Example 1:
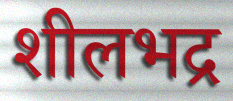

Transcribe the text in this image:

शीलभद्र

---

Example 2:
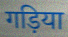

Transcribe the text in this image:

गड़िया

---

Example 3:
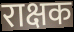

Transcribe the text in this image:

राक्षक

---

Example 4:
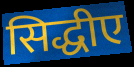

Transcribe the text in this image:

सिद्धीए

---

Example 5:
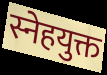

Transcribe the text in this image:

स्नेहयुक्त